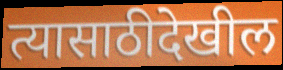
त्यासाठीदेखील